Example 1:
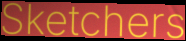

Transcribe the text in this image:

Sketchers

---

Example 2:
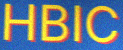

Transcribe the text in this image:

HBIC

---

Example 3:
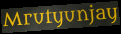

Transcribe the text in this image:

Mrutyunjay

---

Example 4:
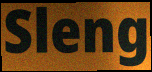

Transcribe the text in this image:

Sleng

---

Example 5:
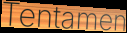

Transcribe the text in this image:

Tentamen